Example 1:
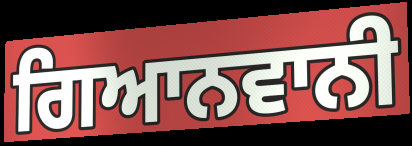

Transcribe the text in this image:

ਗਿਆਨਵਾਨੀ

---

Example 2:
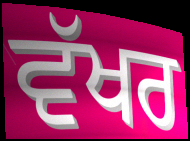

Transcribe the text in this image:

ਵੱਖਰ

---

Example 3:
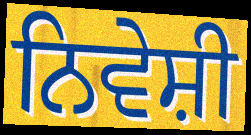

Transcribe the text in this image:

ਨਿਵੇਸ਼ੀ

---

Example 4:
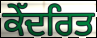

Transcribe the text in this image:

ਕੇੱਦਰਿਤ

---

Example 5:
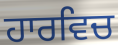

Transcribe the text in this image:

ਹਾਰਵਿਚ